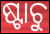
ଷ୍ଟାଚୁ